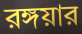
রঙ্গয়ার